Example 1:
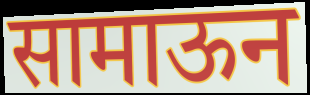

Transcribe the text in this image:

सामाऊन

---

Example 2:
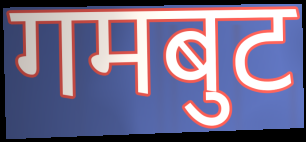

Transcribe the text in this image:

गमबुट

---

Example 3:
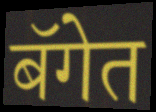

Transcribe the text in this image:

बॅगेत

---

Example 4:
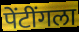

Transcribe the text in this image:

पेंटींगला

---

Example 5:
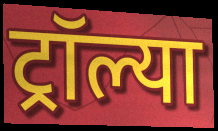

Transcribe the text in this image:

ट्रॉल्या